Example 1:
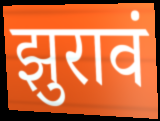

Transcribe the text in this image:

झुरावं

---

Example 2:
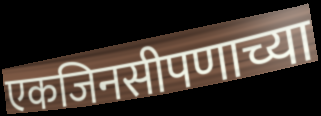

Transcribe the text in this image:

एकजिनसीपणाच्या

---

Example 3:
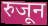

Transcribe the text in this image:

रुजून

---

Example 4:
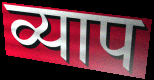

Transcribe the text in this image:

व्याप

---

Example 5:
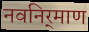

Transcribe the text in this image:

नवनिर्माण